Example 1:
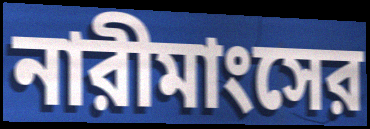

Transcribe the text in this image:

নারীমাংসের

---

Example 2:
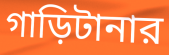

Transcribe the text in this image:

গাড়িটানার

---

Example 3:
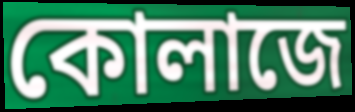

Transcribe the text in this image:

কোলাজে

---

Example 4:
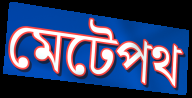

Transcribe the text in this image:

মেটেপথ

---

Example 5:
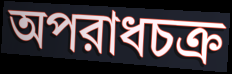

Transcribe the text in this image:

অপরাধচক্র